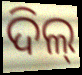
ଦିଲ୍